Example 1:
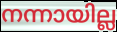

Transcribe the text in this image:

നന്നായില്ല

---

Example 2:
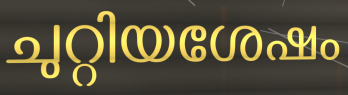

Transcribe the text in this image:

ചുറ്റിയശേഷം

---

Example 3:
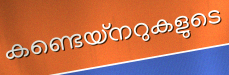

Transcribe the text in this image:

കണ്ടെയ്നറുകളുടെ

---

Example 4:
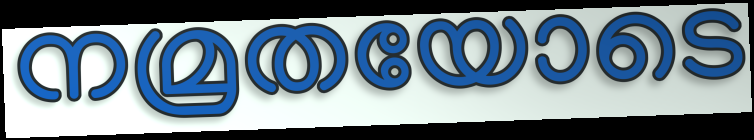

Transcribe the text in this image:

നമ്രതയോടെ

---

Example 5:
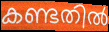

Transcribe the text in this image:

കണ്ടതിൽ